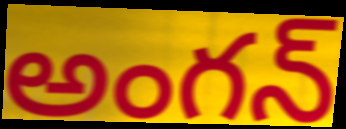
అంగన్